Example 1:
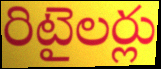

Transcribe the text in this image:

రిటైలర్లు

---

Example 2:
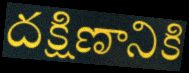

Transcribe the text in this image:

దక్షిణానికి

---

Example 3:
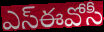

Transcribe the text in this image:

ఎస్ఈవోసీ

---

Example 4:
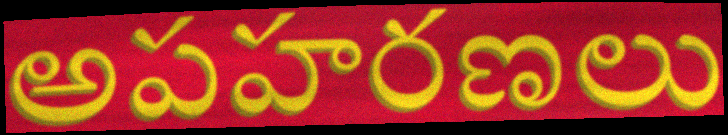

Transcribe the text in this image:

అపహరణలు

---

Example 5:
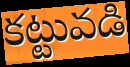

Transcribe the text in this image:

కట్టువడి